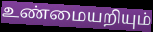
உண்மையறியும்